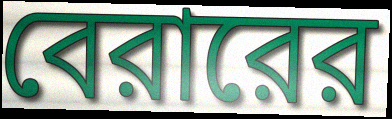
বেরারের